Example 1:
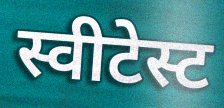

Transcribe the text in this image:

स्वीटेस्ट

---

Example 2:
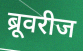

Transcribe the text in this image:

ब्रूवरीज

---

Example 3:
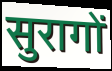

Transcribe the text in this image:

सुरागों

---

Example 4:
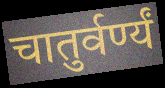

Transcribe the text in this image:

चातुर्वर्ण्यं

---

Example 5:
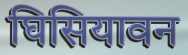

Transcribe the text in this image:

घिसियावन